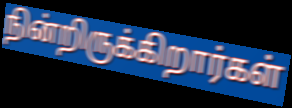
நின்றிருக்கிறார்கள்